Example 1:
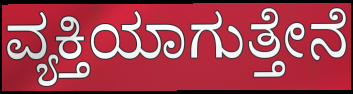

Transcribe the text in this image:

ವ್ಯಕ್ತಿಯಾಗುತ್ತೇನೆ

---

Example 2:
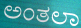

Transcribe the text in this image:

ಅಂತಲಾ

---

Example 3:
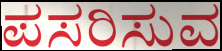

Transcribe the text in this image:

ಪಸರಿಸುವ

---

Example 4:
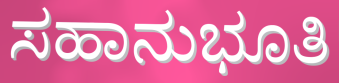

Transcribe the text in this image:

ಸಹಾನುಭೂತಿ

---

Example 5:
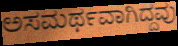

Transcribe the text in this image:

ಅಸಮರ್ಥವಾಗಿದ್ದವು